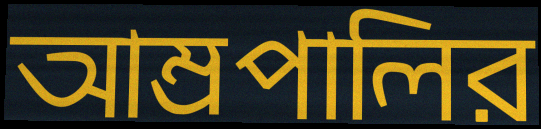
আম্রপালির